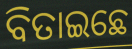
ବିତାଇଛେ